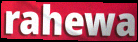
rahewa